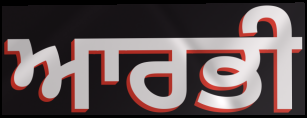
ਆਰਭੀ